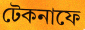
টেকনাফে